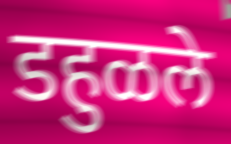
डहुळले